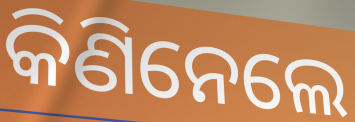
କିଣିନେଲେ